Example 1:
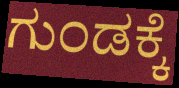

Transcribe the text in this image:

ಗುಂಡಕ್ಕೆ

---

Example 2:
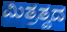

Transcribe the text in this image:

ಮಿತ್ರತ್ವದ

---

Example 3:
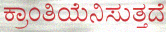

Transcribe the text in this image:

ಕ್ರಾಂತಿಯೆನಿಸುತ್ತದೆ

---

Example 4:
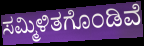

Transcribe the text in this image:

ಸಮ್ಮಿಳಿತಗೊಂಡಿವೆ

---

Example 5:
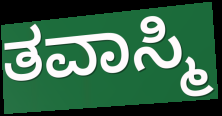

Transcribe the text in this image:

ತವಾಸ್ಮಿ